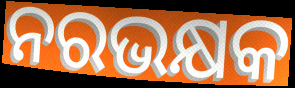
ନରଭକ୍ଷକ